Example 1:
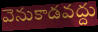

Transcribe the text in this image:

వెనుకాడవద్దు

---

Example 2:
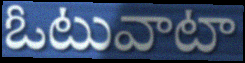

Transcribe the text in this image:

ఓటువాటా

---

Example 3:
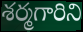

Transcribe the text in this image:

శర్మగారిని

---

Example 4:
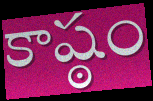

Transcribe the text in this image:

కాష్ఠం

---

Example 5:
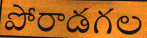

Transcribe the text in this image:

పోరాడగల